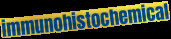
immunohistochemical